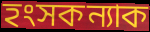
হংসকন্যাক